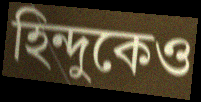
হিন্দুকেও